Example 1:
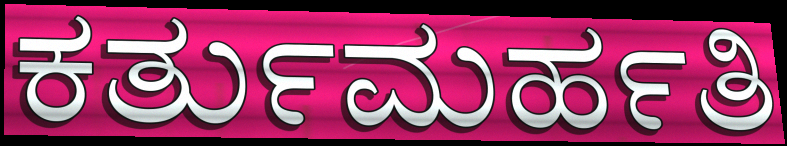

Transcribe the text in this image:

ಕರ್ತುಮರ್ಹತಿ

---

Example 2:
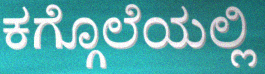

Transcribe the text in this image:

ಕಗ್ಗೊಲೆಯಲ್ಲಿ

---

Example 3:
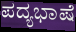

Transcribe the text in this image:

ಪದ್ಯಭಾಷೆ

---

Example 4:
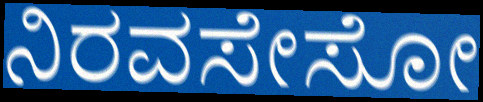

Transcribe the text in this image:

ನಿರವಸೇಸೋ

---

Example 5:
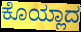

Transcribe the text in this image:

ಕೊಯ್ಲಾದ